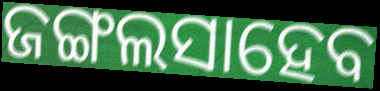
ଜଙ୍ଗଲସାହେବ